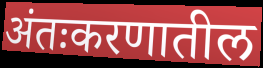
अंतःकरणातील